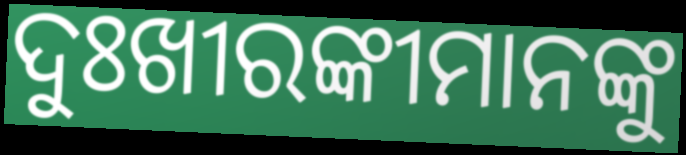
ଦୁଃଖୀରଙ୍କୀମାନଙ୍କୁ